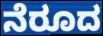
ನೆರೂದ